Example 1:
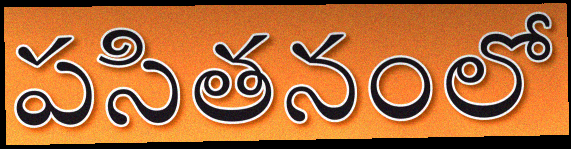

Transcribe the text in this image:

పసితనంలో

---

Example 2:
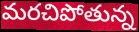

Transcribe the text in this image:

మరచిపోతున్న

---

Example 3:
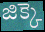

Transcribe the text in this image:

జిక్కె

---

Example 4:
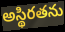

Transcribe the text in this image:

అస్థిరతను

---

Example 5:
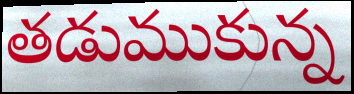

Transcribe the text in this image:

తడుముకున్న